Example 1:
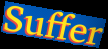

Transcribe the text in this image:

Suffer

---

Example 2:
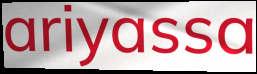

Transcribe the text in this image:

ariyassa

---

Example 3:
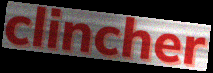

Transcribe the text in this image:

clincher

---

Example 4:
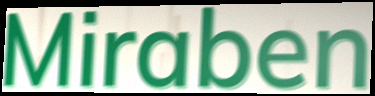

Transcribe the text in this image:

Miraben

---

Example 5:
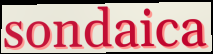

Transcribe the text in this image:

sondaica